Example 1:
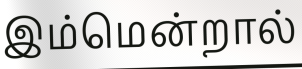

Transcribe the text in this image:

இம்மென்றால்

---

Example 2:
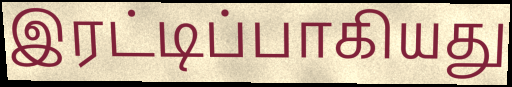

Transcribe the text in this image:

இரட்டிப்பாகியது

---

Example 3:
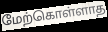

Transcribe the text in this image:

மேற்கொள்ளாத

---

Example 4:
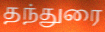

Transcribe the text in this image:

தந்துரை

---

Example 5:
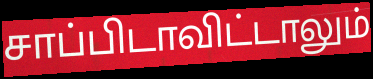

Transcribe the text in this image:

சாப்பிடாவிட்டாலும்